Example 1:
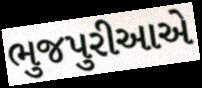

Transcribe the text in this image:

ભુજપુરીઆએ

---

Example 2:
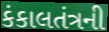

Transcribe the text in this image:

કંકાલતંત્રની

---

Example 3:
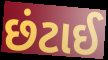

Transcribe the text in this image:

છંટાઈ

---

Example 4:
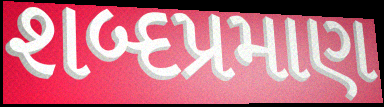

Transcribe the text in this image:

શબ્દપ્રમાણ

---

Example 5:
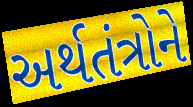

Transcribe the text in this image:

અર્થતંત્રોને